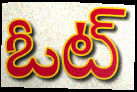
ఓట్